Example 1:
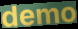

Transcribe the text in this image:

demo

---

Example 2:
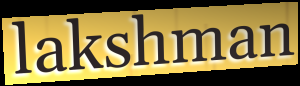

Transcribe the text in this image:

lakshman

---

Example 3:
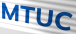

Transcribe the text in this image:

MTUC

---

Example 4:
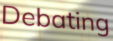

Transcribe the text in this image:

Debating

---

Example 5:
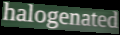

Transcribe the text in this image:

halogenated